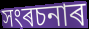
সংৰচনাৰ